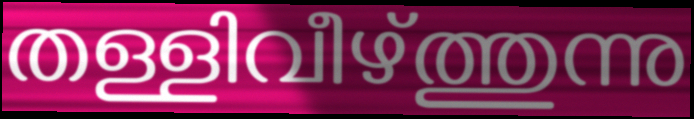
തള്ളിവീഴ്ത്തുന്നു